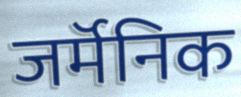
जर्मॅनिक